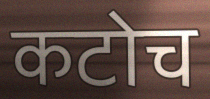
कटोच